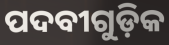
ପଦବୀଗୁଡ଼ିକ